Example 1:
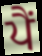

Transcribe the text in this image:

ਪੈਂ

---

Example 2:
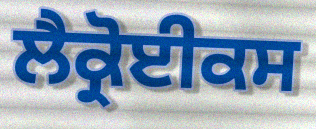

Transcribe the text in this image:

ਲੈਕ੍ਰੋਈਕਸ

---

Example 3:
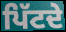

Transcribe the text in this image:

ਪਿੱਟਦੇ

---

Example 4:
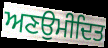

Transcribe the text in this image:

ਅਣਉਮੀਦਿਤ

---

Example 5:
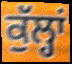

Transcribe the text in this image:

ਕੁੱਲ੍ਹਾਂ